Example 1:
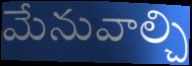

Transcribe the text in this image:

మేనువాల్చి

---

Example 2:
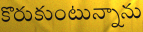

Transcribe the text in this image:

కొరుకుంటున్నాను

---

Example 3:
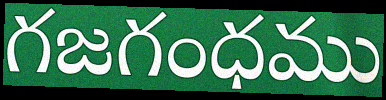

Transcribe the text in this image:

గజగంధము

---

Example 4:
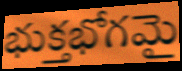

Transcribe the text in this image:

భుక్తభోగమై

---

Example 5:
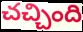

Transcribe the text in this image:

చచ్చింది